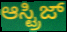
ಆಸ್ಟ್ರಿಜ್